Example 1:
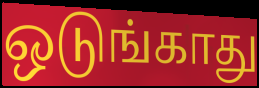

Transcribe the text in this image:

ஒடுங்காது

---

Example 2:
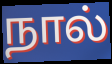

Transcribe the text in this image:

நால்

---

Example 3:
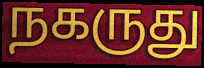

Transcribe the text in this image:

நகருது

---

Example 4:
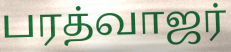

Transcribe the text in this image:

பரத்வாஜர்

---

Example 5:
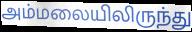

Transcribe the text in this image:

அம்மலையிலிருந்து